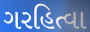
ગરહિત્વા